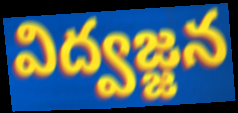
విద్వజ్జన